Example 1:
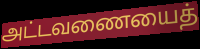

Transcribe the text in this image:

அட்டவணையைத்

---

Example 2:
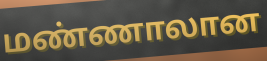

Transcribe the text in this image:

மண்ணாலான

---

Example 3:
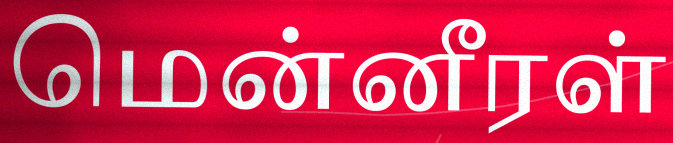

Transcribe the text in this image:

மென்னீரள்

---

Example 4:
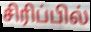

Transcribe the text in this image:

சிரிப்பில்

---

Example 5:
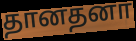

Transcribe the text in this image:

தானதனா